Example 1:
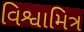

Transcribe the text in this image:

વિશ્વામિત્ર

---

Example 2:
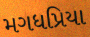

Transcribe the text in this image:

મગધપ્રિયા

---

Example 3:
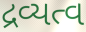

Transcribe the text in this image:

દ્રવ્યત્વ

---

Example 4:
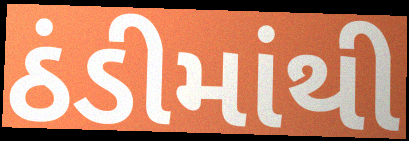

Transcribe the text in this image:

ઠંડીમાંથી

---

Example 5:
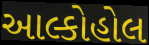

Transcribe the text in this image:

આલ્કોહોલ